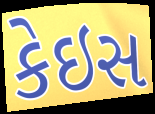
કેઇસ